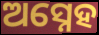
ଅସ୍ନେହ